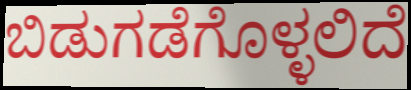
ಬಿಡುಗಡೆಗೊಳ್ಳಲಿದೆ